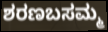
ಶರಣಬಸಮ್ಮ